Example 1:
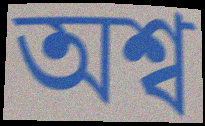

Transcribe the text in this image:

অশ্ব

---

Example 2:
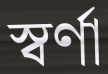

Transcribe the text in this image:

স্বর্ণা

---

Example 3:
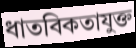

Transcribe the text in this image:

ধাতবিকতাযুক্ত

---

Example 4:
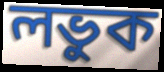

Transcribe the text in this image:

লভুক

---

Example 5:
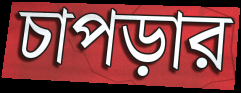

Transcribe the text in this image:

চাপড়ার